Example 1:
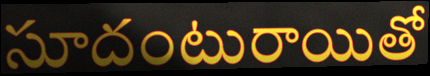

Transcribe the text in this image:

సూదంటురాయితో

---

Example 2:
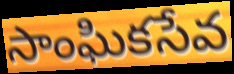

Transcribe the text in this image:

సాంఘికసేవ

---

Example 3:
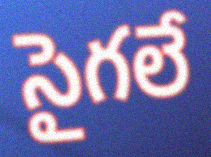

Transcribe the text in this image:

సైగలే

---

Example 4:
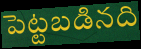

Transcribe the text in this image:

పెట్టబడినది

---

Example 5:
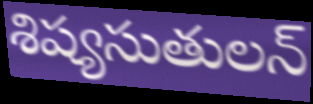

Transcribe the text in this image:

శిష్యసుతులన్